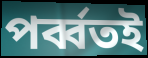
পর্ব্বতই